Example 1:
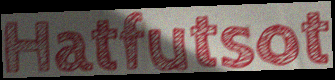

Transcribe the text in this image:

Hatfutsot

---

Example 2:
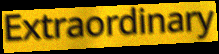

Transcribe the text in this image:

Extraordinary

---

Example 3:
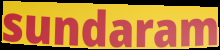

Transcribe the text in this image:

sundaram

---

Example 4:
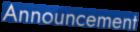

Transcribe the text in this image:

Announcement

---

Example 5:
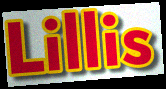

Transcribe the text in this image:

Lillis